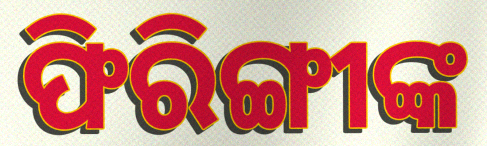
ଫିରିଙ୍ଗୀଙ୍କ